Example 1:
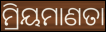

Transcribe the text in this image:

ମ୍ରିୟମାଣତା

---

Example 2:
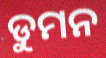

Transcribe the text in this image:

ଡୁମନ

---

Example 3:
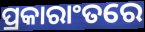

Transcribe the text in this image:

ପ୍ରକାରାଂତରେ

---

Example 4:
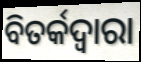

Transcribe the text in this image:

ବିତର୍କଦ୍ୱାରା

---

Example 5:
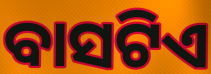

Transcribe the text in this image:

ବାସଟିଏ